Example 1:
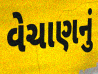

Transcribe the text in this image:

વેચાણનું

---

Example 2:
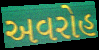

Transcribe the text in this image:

અવરોહ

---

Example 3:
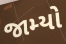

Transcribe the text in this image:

જામ્યો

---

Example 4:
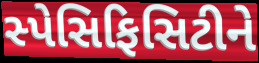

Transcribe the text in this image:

સ્પેસિફિસિટીને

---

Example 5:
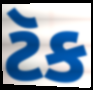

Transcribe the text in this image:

ટૅક